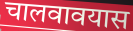
चालवावयास